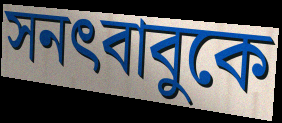
সনৎবাবুকে